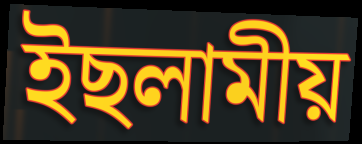
ইছলামীয়